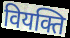
वियक्ति